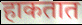
हाकतात